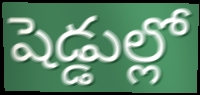
షెడ్డుల్లో